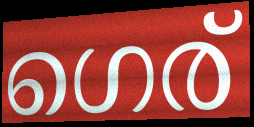
ഗെര്